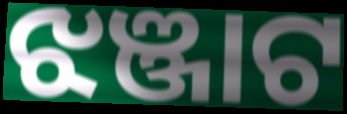
ଝଞ୍ଜାଟ